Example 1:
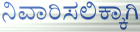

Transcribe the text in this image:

ನಿವಾರಿಸಲಿಕ್ಕಾಗಿ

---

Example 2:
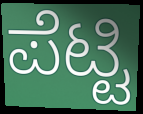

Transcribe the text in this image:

ಪೆಟ್ಟಿ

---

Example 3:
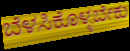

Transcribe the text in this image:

ಬೆಳಸಿಕೊಳ್ಳಬೇಕು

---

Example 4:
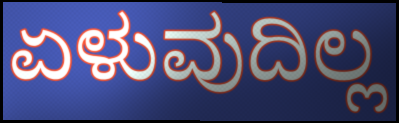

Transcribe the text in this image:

ಏಳುವುದಿಲ್ಲ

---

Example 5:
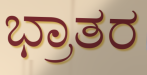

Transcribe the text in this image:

ಭ್ರಾತರ